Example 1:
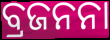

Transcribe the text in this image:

ବ୍ରଜନନା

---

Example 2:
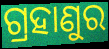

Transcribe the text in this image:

ଗ୍ରହାଣୁର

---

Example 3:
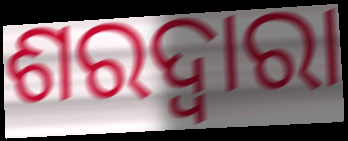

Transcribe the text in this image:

ଶରଦ୍ୱାରା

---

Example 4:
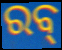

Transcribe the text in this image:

ରବ୍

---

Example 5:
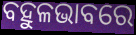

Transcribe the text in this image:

ବହୁଳଭାବରେ